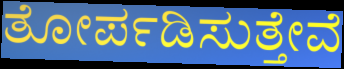
ತೋರ್ಪಡಿಸುತ್ತೇವೆ